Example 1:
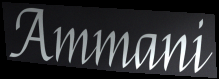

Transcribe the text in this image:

Ammani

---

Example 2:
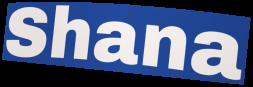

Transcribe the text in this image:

Shana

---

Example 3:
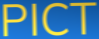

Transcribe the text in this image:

PICT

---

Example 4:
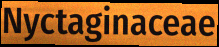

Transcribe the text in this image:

Nyctaginaceae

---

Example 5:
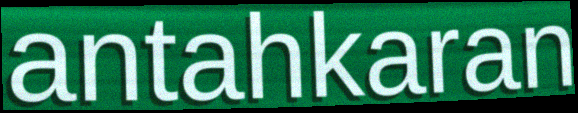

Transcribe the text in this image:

antahkaran